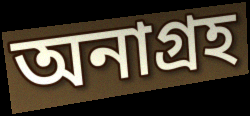
অনাগ্রহ